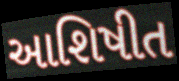
આશિષીત